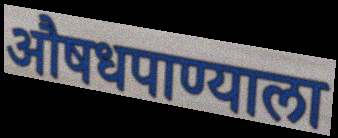
औषधपाण्याला